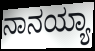
ನಾನಯ್ಯಾ